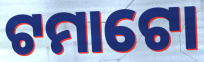
ଟମାଟୋ